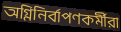
অগ্নিনির্বাপণকর্মীরা